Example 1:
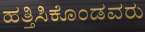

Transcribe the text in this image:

ಹತ್ತಿಸಿಕೊಂಡವರು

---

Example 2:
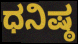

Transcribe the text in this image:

ಧನಿಷ್ಠ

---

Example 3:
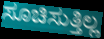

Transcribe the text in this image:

ಸೂಚಿಸುತ್ತಿಲ್ಲ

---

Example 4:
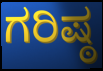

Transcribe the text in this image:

ಗರಿಷ್ಠ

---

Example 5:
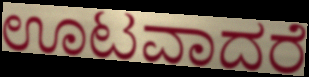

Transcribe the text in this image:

ಊಟವಾದರೆ